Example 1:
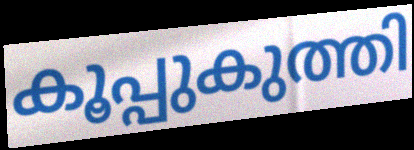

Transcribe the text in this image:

കൂപ്പുകുത്തി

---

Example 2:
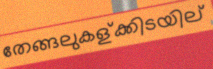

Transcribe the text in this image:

തേങ്ങലുകള്ക്കിടയില്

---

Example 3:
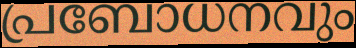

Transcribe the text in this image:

പ്രബോധനവും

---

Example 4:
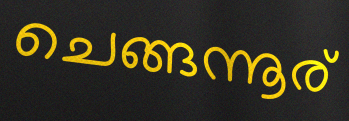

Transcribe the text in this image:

ചെങ്ങന്നൂര്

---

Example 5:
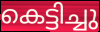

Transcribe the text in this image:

കെട്ടിച്ചു